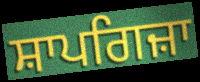
ਸ਼ਾਪਗਿਜ਼ਾ